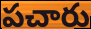
పచారు